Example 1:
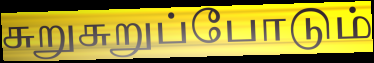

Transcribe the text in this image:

சுறுசுறுப்போடும்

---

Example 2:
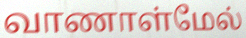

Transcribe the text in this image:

வாணாள்மேல்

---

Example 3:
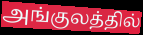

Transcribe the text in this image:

அங்குலத்தில்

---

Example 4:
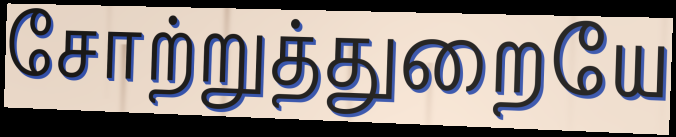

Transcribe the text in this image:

சோற்றுத்துறையே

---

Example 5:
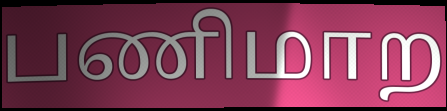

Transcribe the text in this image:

பணிமாற